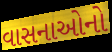
વાસનાઓનો